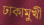
ঢাকামুখী